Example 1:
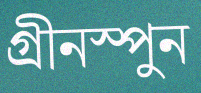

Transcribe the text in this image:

গ্রীনস্পুন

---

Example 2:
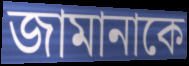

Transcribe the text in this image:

জামানাকে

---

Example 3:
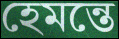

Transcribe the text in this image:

হেমন্তে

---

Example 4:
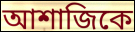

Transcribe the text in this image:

আশাজিকে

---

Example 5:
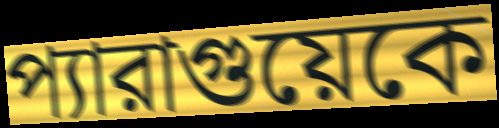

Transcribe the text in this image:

প্যারাগুয়েকে